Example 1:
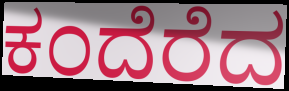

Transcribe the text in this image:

ಕಂದೆರೆದ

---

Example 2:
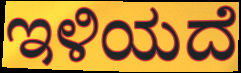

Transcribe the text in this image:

ಇಳಿಯದೆ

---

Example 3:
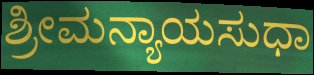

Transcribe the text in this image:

ಶ್ರೀಮನ್ಯಾಯಸುಧಾ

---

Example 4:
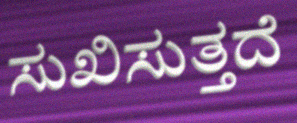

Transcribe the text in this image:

ಸುಖಿಸುತ್ತದೆ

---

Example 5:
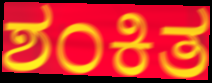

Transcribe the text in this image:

ಶಂಕಿತ